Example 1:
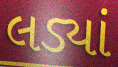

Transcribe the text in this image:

લડ્યાં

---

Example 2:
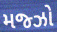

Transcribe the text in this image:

મજ્ઝો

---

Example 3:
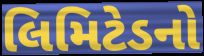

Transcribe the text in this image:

લિમિટેડનો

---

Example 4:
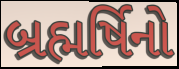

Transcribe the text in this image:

બ્રહ્મર્ષિનો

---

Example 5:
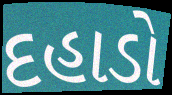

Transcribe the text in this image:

દહાડો